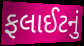
ફલાઈટનું